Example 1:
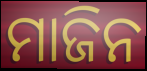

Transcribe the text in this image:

ମାଜିନ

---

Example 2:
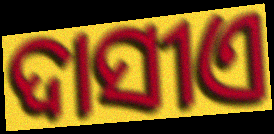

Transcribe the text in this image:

ଦାସୀଏ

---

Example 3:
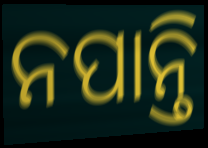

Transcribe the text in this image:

ନପାନ୍ତି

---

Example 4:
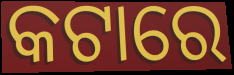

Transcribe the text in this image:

କଟାରେ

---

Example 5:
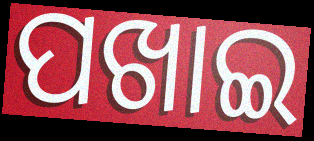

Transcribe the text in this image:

ପଖାଇ